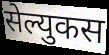
सेल्युकस